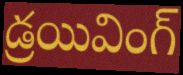
డ్రయివింగ్